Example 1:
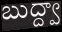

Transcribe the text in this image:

బుద్ద్వా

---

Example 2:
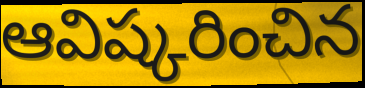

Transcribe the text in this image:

ఆవిష్కరించిన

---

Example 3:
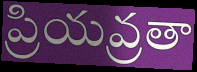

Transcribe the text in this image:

ప్రియవ్రతా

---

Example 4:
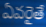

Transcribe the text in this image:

ఏవరైతే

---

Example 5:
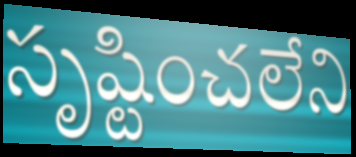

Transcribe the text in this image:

సృష్టించలేని